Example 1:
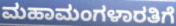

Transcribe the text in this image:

ಮಹಾಮಂಗಳಾರತಿಗೆ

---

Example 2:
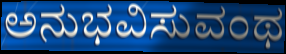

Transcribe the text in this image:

ಅನುಭವಿಸುವಂಥ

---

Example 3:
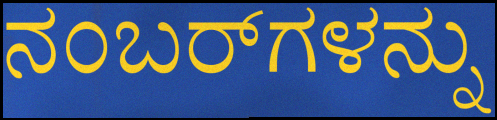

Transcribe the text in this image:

ನಂಬರ್‌ಗಳನ್ನು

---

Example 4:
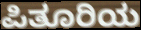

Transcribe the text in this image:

ಪಿತೂರಿಯ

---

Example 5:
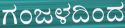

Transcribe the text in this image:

ಗಂಜಳದಿಂದ